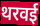
थरवई